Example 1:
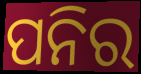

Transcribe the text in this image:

ପନିର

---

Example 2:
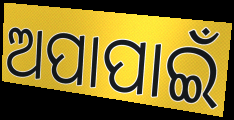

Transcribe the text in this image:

ଅପାପାଇଁ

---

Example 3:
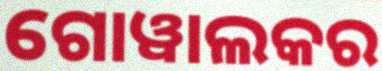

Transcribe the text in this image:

ଗୋୱାଲକର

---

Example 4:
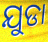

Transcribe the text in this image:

ଯୁଡା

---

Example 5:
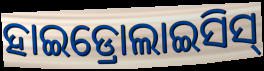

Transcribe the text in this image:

ହାଇଡ୍ରୋଲାଇସିସ୍